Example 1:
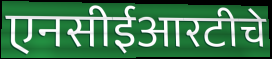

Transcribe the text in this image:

एनसीईआरटीचे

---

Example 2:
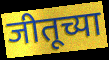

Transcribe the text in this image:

जीतूच्या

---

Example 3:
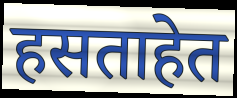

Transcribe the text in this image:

हसताहेत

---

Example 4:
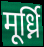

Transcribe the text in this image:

मूर्ध्नि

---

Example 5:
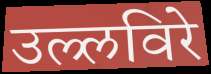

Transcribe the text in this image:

उल्लविरे